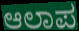
ಆಲಾಪ